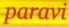
paravi